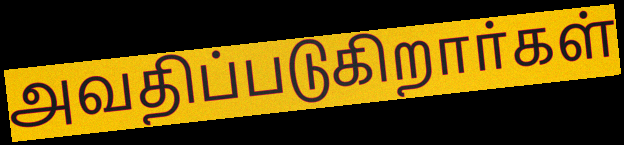
அவதிப்படுகிறார்கள்